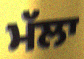
ਮੱਲਾ